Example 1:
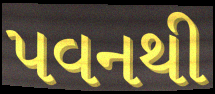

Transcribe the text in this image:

પવનથી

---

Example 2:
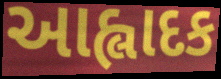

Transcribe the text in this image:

આહ્લાદક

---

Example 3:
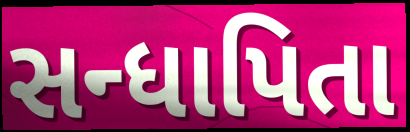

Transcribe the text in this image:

સન્ધાપિતા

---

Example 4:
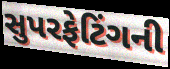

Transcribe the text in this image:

સુપરફેટિંગની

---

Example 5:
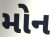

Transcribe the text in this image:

મોન